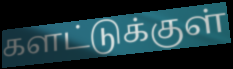
களட்டுக்குள்